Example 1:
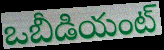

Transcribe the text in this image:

ఒబీడియంట్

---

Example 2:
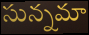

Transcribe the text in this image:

సున్నమా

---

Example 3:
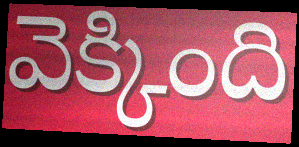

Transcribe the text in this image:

వెక్కింది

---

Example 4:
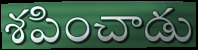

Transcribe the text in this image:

శపించాడు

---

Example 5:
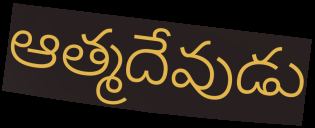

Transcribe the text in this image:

ఆత్మదేవుడు